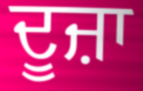
ਦੂਜ਼ਾ